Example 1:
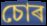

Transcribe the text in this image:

চোৰ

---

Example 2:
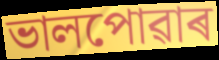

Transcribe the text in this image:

ভালপোৱাৰ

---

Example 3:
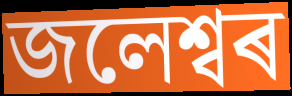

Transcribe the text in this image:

জলেশ্বৰ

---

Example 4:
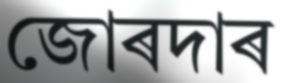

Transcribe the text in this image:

জোৰদাৰ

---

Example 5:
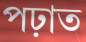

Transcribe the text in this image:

পঢ়াত